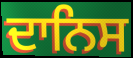
ਦਾਨਿਸ